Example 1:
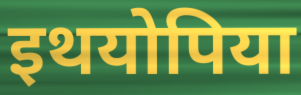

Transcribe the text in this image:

इथयोपिया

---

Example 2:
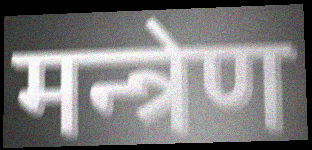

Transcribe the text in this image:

मन्त्रेण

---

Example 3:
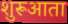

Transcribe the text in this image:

शुरूआता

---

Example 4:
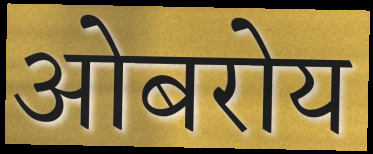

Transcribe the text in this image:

ओबरोय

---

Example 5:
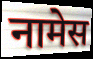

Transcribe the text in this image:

नामेस